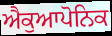
ਐਕੁਆਪੋਨਿਕ